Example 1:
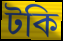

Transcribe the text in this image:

টকি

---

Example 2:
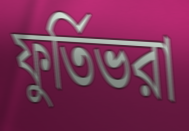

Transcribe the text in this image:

ফুর্তিভরা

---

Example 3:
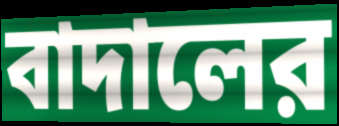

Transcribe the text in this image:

বাদালের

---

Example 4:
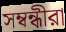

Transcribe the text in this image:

সম্বন্ধীরা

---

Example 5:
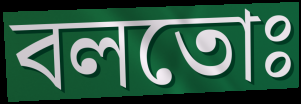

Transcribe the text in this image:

বলতোঃ